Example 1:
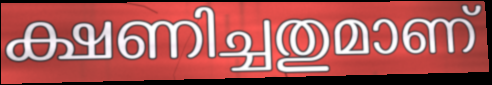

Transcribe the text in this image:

ക്ഷണിച്ചതുമാണ്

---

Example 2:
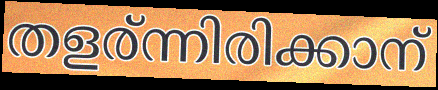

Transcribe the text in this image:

തളര്ന്നിരിക്കാന്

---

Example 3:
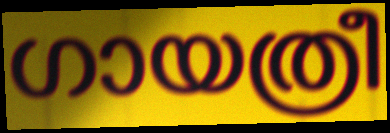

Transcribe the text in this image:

ഗായത്രീ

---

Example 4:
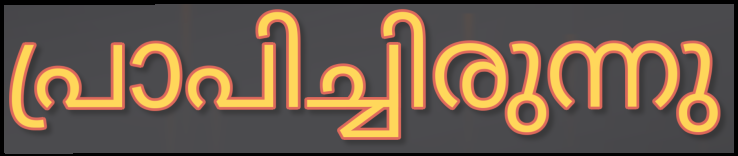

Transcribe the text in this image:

പ്രാപിച്ചിരുന്നു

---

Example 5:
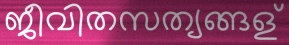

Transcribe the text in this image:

ജീവിതസത്യങ്ങള്